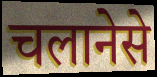
चलानेसे